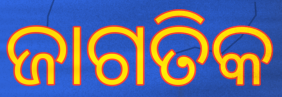
ଜାଗତିକ